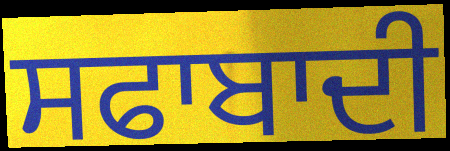
ਸਫਾਬਾਦੀ